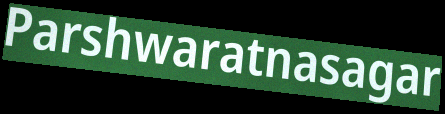
Parshwaratnasagar